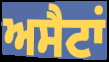
ਅਸੈਟਾਂ